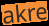
akre